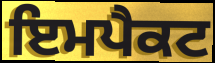
ਇਮਪੈਕਟ